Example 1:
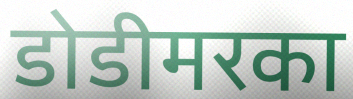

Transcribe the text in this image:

डोडीमरका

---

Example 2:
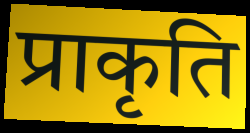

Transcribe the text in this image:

प्राकृति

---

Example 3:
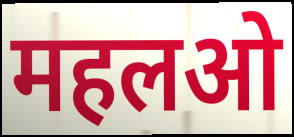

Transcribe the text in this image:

महलओ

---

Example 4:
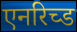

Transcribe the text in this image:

एनरिच्ड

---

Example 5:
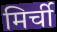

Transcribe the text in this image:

मिर्ची